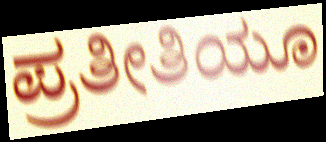
ಪ್ರತೀತಿಯೂ